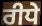
ਰੀਧੇ